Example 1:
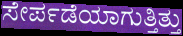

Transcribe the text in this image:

ಸೇರ್ಪಡೆಯಾಗುತ್ತಿತ್ತು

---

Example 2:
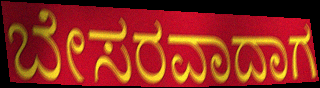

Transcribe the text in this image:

ಬೇಸರವಾದಾಗ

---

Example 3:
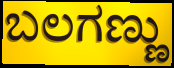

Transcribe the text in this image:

ಬಲಗಣ್ಣು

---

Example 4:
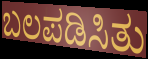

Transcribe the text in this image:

ಬಲಪಡಿಸಿತು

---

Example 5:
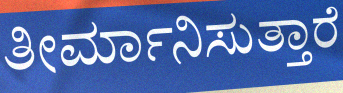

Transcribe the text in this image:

ತೀರ್ಮಾನಿಸುತ್ತಾರೆ